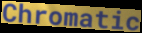
Chromatic